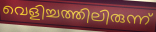
വെളിച്ചത്തിലിരുന്ന്